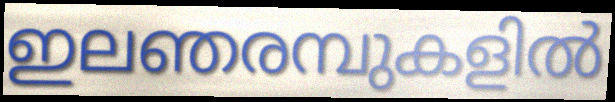
ഇലഞരമ്പുകളിൽ